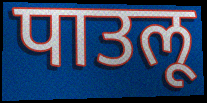
पाउलू